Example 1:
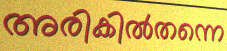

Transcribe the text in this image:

അരികിൽതന്നെ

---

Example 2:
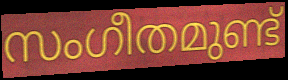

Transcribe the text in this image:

സംഗീതമുണ്ട്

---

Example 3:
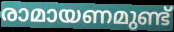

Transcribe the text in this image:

രാമായണമുണ്ട്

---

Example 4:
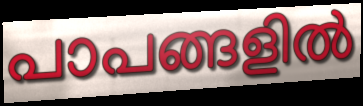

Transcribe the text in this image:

പാപങ്ങളിൽ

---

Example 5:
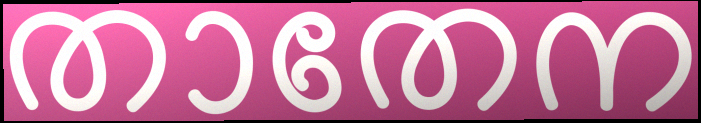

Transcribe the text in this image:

താതേന